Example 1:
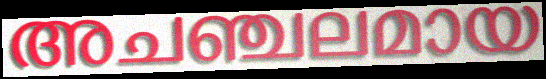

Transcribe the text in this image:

അചഞ്ചലമായ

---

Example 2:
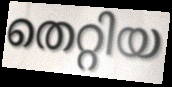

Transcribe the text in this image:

തെറ്റിയ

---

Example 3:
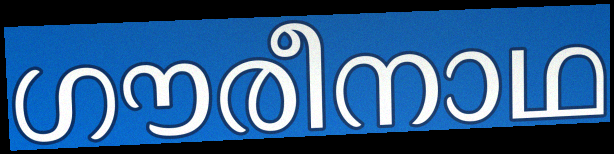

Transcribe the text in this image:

ഗൗരീനാഥ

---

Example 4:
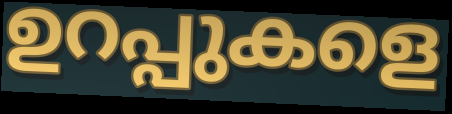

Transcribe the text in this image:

ഉറപ്പുകളെ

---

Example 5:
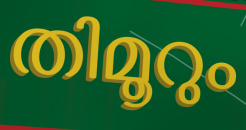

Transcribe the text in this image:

തിമൂറും